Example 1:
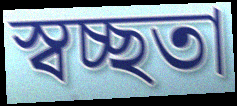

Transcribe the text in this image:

স্বচ্ছতা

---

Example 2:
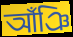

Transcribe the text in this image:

আঁঞি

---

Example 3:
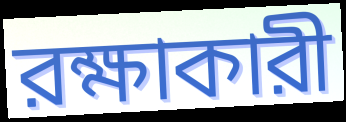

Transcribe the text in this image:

রক্ষাকারী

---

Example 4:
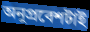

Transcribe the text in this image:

অনুপ্রবেশটাই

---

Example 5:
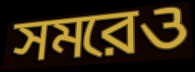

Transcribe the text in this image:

সমরেও